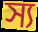
স্য